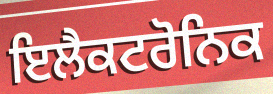
ਇਲੈਕਟਰੋਨਿਕ